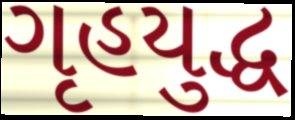
ગૃહયુદ્ધ